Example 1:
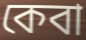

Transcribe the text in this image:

কেবা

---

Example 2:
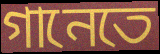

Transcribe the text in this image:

গানেতে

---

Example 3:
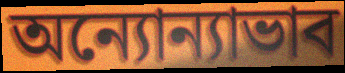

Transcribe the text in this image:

অন্যোন্যাভাব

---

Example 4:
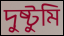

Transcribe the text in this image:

দুষ্টুমি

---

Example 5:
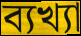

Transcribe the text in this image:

ব্যখ্যা